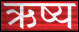
ऋष्य